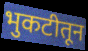
भुकटीतून